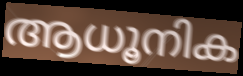
ആധൂനിക